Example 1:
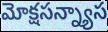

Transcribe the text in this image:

మోక్షసన్న్యాస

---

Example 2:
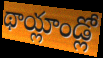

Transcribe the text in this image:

థాయ్లాండ్లో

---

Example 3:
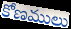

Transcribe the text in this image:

కోణములు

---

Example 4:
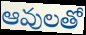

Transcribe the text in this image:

ఆవులతో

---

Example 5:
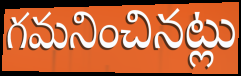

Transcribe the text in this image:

గమనించినట్లు